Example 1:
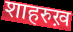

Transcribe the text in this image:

शाहरुख़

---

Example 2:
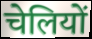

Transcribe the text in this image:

चेलियों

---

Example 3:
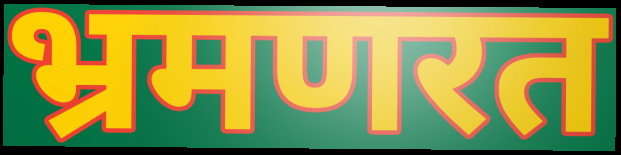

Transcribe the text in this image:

भ्रमणरत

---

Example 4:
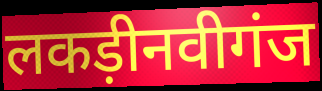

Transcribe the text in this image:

लकड़ीनवीगंज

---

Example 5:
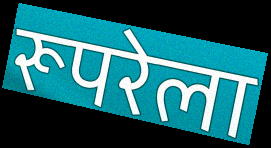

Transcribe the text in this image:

रूपरेला